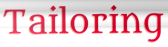
Tailoring